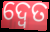
ଦ୍ବେତ